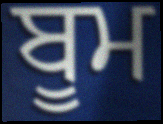
ਬੂਮ